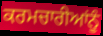
ਕਰਮਚਾਰੀਆਂਨੂੰ